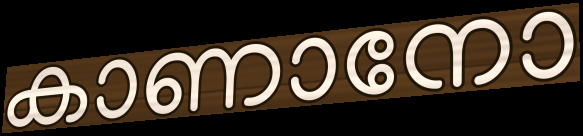
കാണാനോ